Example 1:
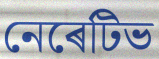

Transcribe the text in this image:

নেৰেটিভ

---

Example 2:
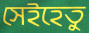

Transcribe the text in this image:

সেইহেতু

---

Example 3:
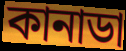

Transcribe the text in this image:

কানাডা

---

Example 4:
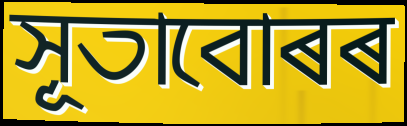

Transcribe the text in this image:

সূতাবোৰৰ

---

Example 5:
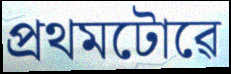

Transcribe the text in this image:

প্ৰথমটোৱে